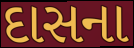
દાસના